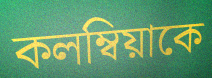
কলম্বিয়াকে